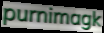
purnimagk